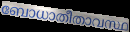
ബോധാതീതാവസ്ഥ